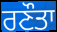
ਰਣੌਤਾ